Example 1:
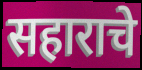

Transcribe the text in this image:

सहाराचे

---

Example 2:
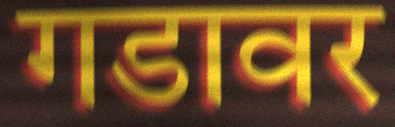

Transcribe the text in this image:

गडावर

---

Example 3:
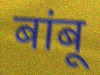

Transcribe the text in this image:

बांबू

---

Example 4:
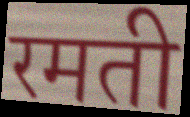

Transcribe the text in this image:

रमती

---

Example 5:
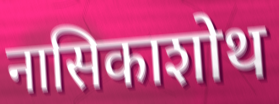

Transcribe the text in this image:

नासिकाशोथ